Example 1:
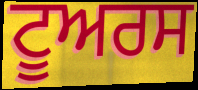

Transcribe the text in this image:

ਟੂਅਰਸ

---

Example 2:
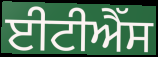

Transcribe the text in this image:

ਈਟੀਐੱਸ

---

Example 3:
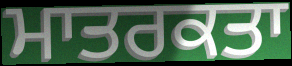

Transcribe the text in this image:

ਮਾਤਰਕਤਾ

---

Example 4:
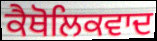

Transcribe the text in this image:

ਕੈਥੋਲਿਕਵਾਦ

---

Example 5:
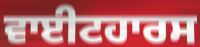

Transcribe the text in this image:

ਵਾਈਟਹਾਰਸ